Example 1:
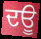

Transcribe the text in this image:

ਦਊ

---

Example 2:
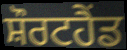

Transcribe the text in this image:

ਸ਼ੌਰਟਹੈਂਡ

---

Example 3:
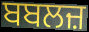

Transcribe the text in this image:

ਬਬਲਜ਼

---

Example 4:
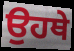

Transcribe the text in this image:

ਉਹਥੇ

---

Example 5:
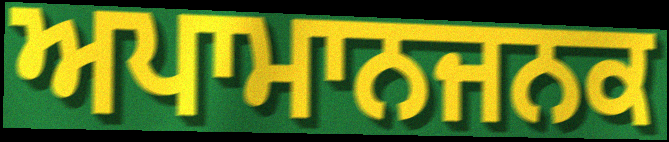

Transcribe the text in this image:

ਅਪਾਮਾਨਜਨਕ